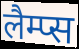
लैम्प्स